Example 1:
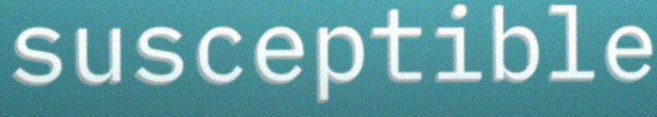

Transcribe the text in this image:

susceptible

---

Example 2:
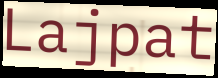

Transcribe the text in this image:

Lajpat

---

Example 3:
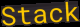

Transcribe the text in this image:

Stack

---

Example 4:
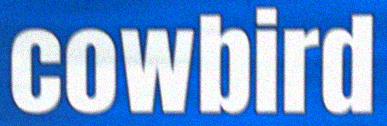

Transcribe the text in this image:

cowbird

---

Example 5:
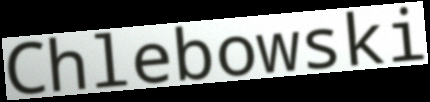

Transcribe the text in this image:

Chlebowski